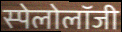
स्पेलोलॉजी